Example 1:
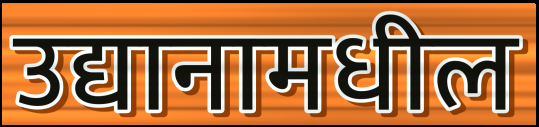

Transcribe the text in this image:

उद्यानामधील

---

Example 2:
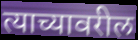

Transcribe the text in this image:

त्याच्यावरील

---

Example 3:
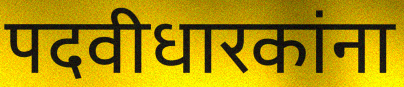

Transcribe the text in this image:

पदवीधारकांना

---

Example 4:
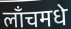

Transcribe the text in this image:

लाँचमधे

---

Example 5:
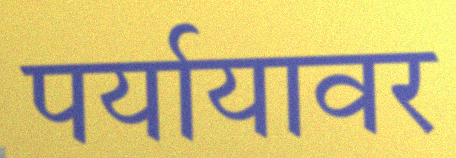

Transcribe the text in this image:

पर्यायावर